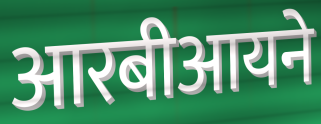
आरबीआयने